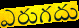
ఎరుగదు